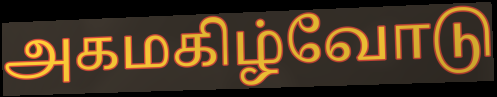
அகமகிழ்வோடு